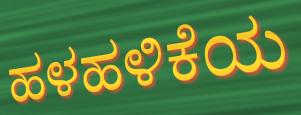
ಹಳಹಳಿಕೆಯ